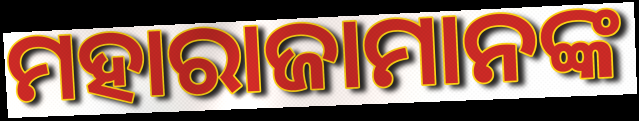
ମହାରାଜାମାନଙ୍କ